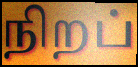
நிறப்